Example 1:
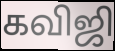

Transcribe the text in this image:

கவிஜி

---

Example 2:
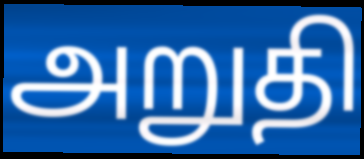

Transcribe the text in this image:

அறுதி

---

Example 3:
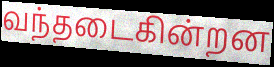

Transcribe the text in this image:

வந்தடைகின்றன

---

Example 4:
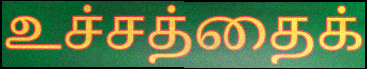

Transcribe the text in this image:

உச்சத்தைக்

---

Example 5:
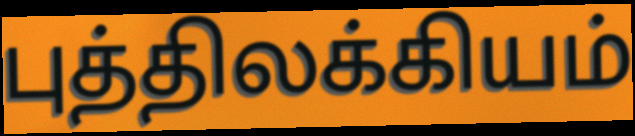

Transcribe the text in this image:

புத்திலக்கியம்